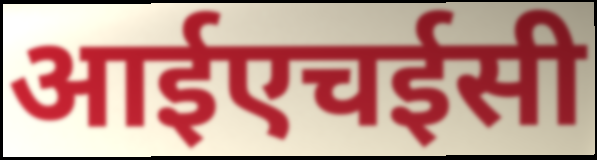
आईएचईसी